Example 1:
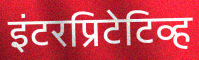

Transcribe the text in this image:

इंटरप्रिटेटिव्ह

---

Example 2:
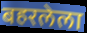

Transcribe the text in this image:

बहरलेला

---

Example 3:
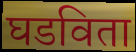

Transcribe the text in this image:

घडविता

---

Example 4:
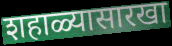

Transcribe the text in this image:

शहाळ्यासारखा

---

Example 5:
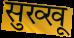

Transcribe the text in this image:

सुख्खू